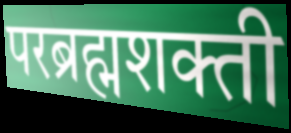
परब्रह्मशक्ती